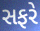
સફરે